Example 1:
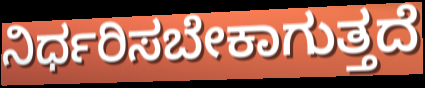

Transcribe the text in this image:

ನಿರ್ಧರಿಸಬೇಕಾಗುತ್ತದೆ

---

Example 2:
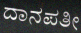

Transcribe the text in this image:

ದಾನಪತೀ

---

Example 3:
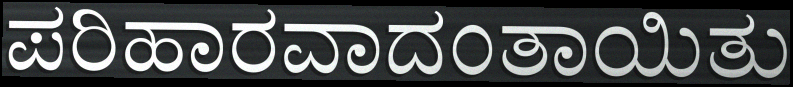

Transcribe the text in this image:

ಪರಿಹಾರವಾದಂತಾಯಿತು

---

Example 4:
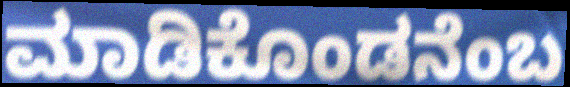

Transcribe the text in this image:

ಮಾಡಿಕೊಂಡನೆಂಬ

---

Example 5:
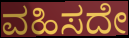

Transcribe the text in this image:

ವಹಿಸದೇ